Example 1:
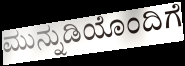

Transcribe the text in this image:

ಮುನ್ನುಡಿಯೊಂದಿಗೆ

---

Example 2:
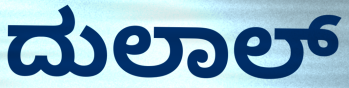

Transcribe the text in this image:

ದುಲಾಲ್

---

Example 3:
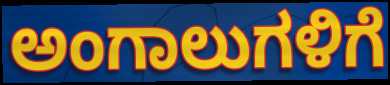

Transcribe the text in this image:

ಅಂಗಾಲುಗಳಿಗೆ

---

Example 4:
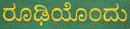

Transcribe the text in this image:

ರೂಢಿಯೊಂದು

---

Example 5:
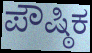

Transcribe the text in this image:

ಪೌಷ್ಠಿಕ